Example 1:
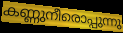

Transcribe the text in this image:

കണ്ണുനീരൊപ്പുന്നു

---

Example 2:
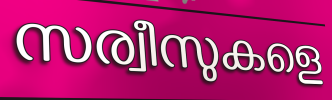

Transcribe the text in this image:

സര്വീസുകളെ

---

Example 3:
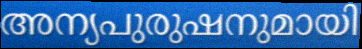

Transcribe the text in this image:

അന്യപുരുഷനുമായി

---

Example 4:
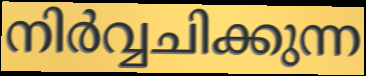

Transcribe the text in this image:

നിർവ്വചിക്കുന്ന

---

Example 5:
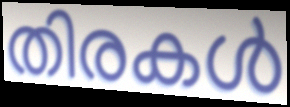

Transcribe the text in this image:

തിരകൾ